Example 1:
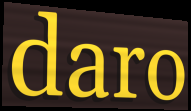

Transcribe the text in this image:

daro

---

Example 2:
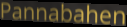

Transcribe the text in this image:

Pannabahen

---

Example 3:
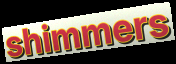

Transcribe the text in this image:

shimmers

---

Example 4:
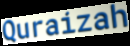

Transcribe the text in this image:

Quraizah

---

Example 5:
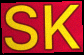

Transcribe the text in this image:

SK